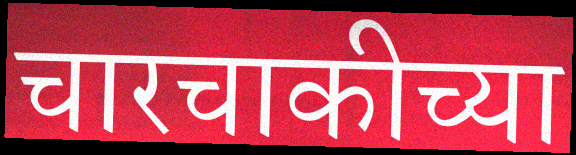
चारचाकीच्या